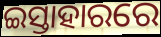
ଇସ୍ତାହାରରେ